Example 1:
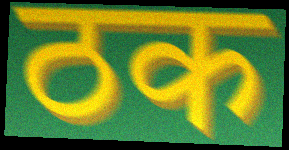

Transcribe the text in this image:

ठक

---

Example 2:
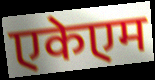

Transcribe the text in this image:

एकेएम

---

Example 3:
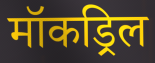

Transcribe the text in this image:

मॉकड्रिल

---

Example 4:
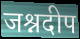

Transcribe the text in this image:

जश्नदीप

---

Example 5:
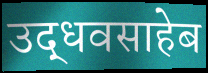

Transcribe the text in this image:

उद्धवसाहेब